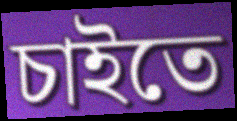
চাইতে